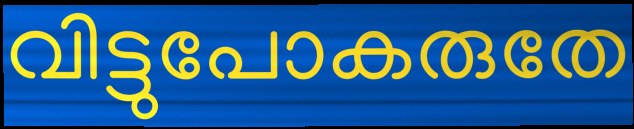
വിട്ടുപോകരുതേ